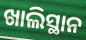
ଖାଲିସ୍ଥାନ